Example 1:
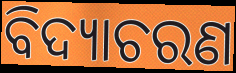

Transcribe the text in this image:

ବିଦ୍ୟାଚରଣ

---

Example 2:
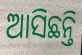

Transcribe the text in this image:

ଆସିଛନ୍ତି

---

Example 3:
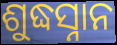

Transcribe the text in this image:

ଶୁଦ୍ଧସ୍ନାନ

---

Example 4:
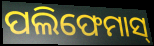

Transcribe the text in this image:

ପଲିଫେମାସ୍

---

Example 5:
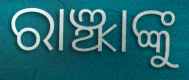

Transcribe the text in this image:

ରାଞ୍ଝାଙ୍କୁ